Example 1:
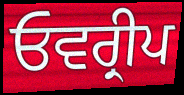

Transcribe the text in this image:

ਓਵਰ੍ਰੀਪ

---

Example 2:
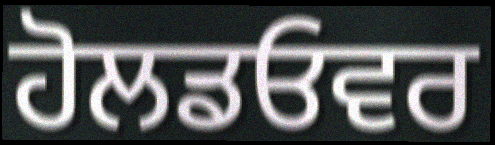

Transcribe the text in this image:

ਹੋਲਡਓਵਰ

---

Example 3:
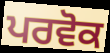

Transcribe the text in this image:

ਪਰਵੋਕ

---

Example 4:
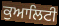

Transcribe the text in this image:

ਕੁਆਲਿਟੀ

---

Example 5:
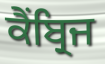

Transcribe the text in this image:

ਕੈਂਬ੍ਰਿਜ